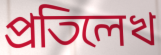
প্রতিলেখ